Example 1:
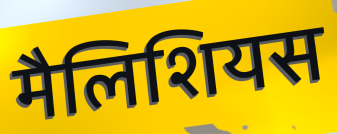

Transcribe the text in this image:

मैलिशियस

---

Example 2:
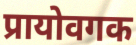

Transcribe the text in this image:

प्रायोवगक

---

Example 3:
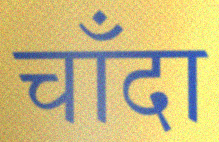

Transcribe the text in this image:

चाँदा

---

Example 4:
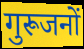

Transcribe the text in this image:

गुरूजनों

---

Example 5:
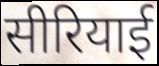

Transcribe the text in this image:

सीरियाई